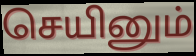
செயினும்